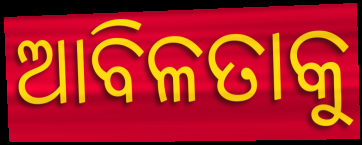
ଆବିଳତାକୁ